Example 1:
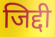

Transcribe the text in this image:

जिद्दी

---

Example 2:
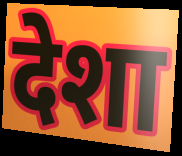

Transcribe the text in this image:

देशा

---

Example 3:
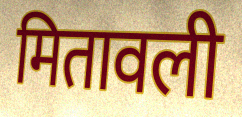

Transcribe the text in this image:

मितावली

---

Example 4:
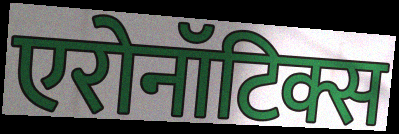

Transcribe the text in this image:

एरोनॉटिक्स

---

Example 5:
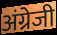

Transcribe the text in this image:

अंग्रेजी